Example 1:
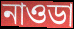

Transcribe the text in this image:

নাওডা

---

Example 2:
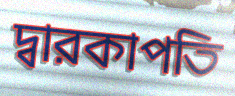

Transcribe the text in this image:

দ্বারকাপতি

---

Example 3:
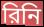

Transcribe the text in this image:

রিনি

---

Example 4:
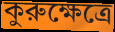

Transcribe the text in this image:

কুরুক্ষেত্রে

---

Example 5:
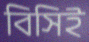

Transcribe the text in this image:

বিসিই